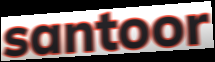
santoor